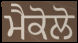
ਮੈਕੋਲੋ